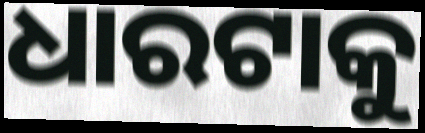
ଧାରଟାକୁ